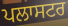
ਪਲਾਸਟਰ